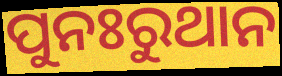
ପୁନଃରୁଥାନ